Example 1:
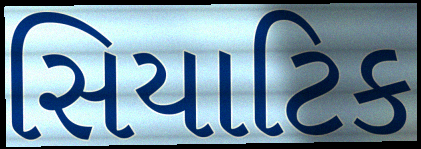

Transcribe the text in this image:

સિયાટિક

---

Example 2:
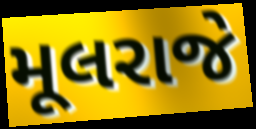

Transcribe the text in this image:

મૂલરાજે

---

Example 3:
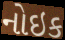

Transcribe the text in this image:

નોઇક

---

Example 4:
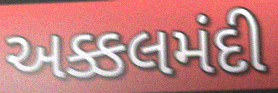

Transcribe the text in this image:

અક્કલમંદી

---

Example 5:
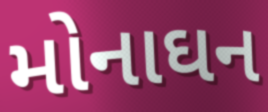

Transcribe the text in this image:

મોનાઘન